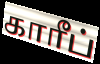
காரீப்